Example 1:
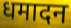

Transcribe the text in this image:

धमादन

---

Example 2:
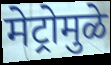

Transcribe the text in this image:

मेट्रोमुळे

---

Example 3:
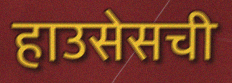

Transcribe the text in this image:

हाउसेसची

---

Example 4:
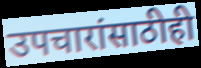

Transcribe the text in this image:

उपचारांसाठीही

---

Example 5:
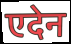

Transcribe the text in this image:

एदेन